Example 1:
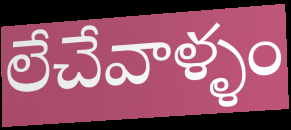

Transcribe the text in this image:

లేచేవాళ్ళం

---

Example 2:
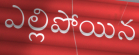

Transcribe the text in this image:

ఎల్లిపోయిన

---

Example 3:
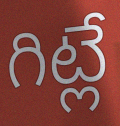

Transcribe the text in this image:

గిట్లే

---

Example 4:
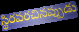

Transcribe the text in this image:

స్థిరపరచినప్పుడు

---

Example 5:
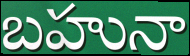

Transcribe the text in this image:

బహునా